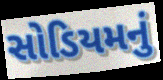
સોડિયમનું